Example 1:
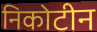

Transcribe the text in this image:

निकोटीन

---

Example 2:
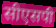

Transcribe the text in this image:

सीएसपी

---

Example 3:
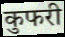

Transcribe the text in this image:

कुफरी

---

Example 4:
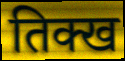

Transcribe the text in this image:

तिक्ख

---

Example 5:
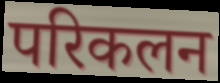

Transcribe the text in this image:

परिकलन